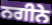
ਨਗੀਨੇ